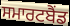
ਸਮਾਰਟਬੈਂਡ